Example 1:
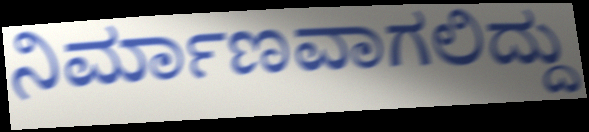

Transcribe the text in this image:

ನಿರ್ಮಾಣವಾಗಲಿದ್ದು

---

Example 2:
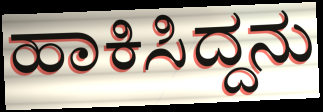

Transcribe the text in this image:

ಹಾಕಿಸಿದ್ದನು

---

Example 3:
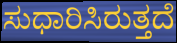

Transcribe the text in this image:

ಸುಧಾರಿಸಿರುತ್ತದೆ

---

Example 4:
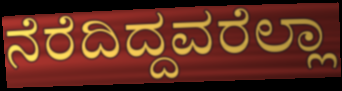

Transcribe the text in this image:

ನೆರೆದಿದ್ದವರೆಲ್ಲಾ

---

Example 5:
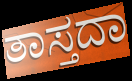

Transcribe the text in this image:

ತಾಸ್ತದಾ